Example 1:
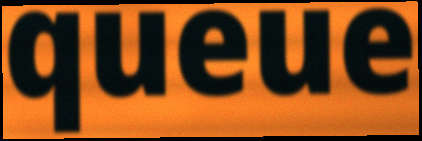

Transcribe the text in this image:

queue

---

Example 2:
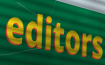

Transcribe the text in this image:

editors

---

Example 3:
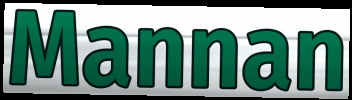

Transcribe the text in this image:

Mannan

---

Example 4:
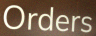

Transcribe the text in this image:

Orders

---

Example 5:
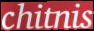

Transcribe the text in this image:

chitnis